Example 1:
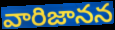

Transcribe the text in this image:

వారిజానన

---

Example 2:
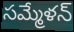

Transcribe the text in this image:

సమ్మేళన్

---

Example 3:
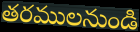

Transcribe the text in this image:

తరములనుండి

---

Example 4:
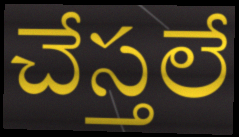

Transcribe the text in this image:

చేస్తలే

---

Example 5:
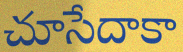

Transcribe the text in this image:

చూసేదాకా